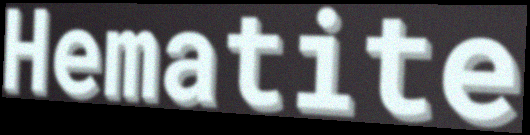
Hematite